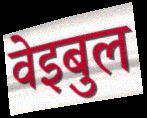
वेइबुल